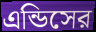
এন্ডিসের